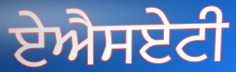
ਏਐਸਏਟੀ